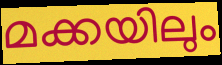
മക്കയിലും